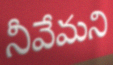
నీవేమని